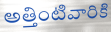
అత్తింటివారికి